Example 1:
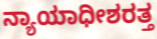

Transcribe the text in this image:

ನ್ಯಾಯಾಧೀಶರತ್ತ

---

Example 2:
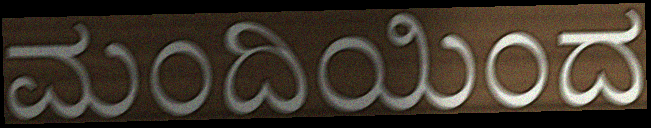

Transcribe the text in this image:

ಮಂದಿಯಿಂದ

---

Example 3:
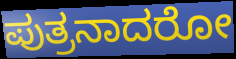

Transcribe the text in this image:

ಪುತ್ರನಾದರೋ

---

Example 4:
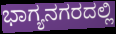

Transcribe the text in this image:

ಭಾಗ್ಯನಗರದಲ್ಲಿ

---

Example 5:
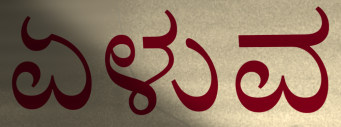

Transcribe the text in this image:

ಏಳುವ